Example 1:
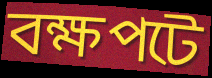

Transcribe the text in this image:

বক্ষপটে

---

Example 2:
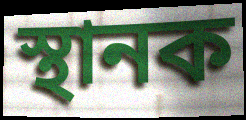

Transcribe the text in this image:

স্থানক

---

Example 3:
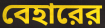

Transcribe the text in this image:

বেহারের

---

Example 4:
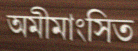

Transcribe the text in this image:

অমীমাংসিত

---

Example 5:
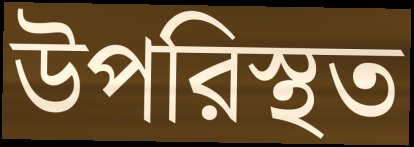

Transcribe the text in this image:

উপরিস্থত